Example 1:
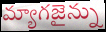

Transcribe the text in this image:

మ్యాగజైన్ను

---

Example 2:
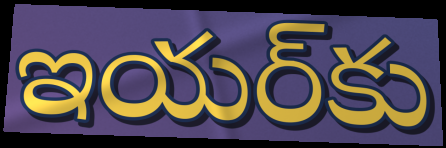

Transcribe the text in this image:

ఇయర్‌కు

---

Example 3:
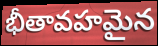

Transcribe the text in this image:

భీతావహమైన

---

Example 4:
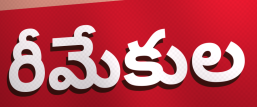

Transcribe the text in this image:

రీమేకుల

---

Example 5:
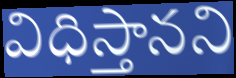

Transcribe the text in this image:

విధిస్తానని